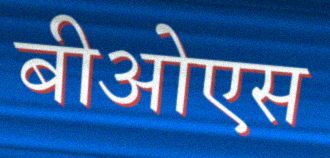
बीओएस